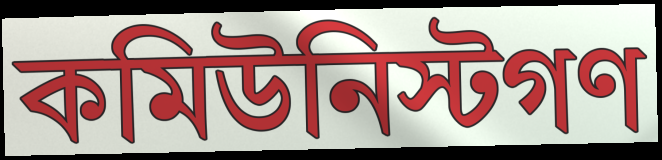
কমিউনিস্টগণ